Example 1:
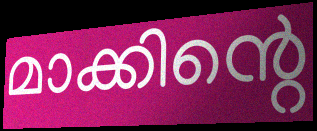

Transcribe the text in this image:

മാക്കിന്റെ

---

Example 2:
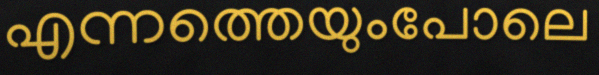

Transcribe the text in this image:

എന്നത്തെയുംപോലെ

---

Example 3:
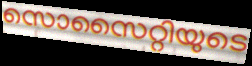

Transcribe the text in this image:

സൊസൈറ്റിയുടെ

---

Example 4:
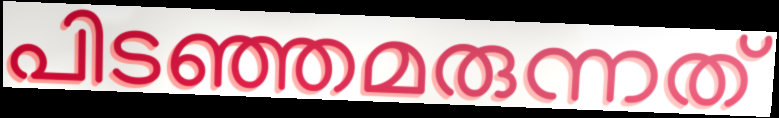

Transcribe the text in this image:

പിടഞ്ഞമരുന്നത്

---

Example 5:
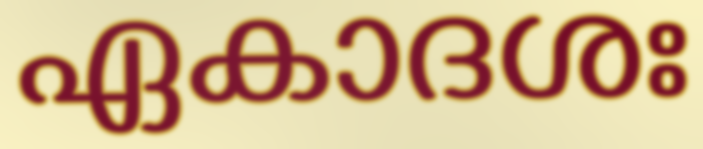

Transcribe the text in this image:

ഏകാദശഃ